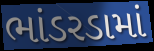
ભાંડરડામાં